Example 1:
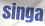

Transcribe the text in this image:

singa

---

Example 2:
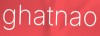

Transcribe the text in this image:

ghatnao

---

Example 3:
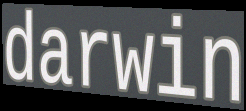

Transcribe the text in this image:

darwin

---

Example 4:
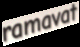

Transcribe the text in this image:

ramavat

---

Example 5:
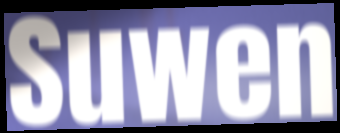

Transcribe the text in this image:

Suwen